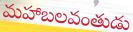
మహాబలవంతుడు